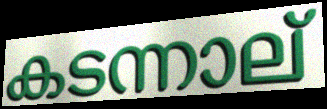
കടന്നാല്